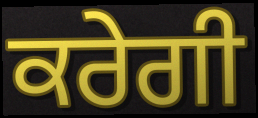
ਕਰੇਗੀ